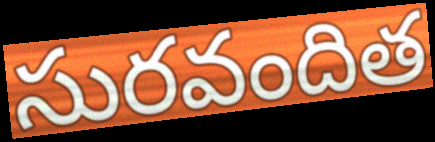
సురవందిత